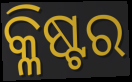
କ୍ଳିଷ୍ଟର